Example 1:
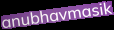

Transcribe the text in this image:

anubhavmasik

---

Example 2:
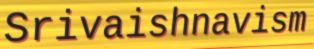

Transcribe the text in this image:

Srivaishnavism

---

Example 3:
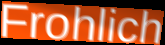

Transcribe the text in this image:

Frohlich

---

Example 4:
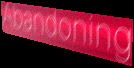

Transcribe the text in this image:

Abandoning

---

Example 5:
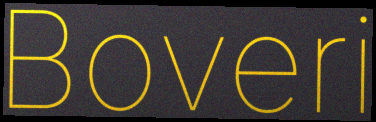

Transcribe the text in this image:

Boveri